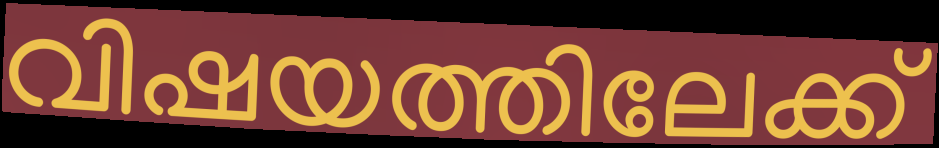
വിഷയത്തിലേക്ക്